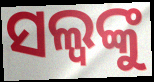
ସଲ୍ୱଙ୍କୁ